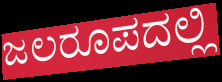
ಜಲರೂಪದಲ್ಲಿ